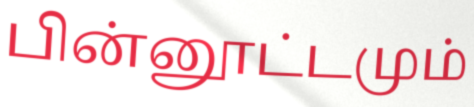
பின்னூட்டமும்